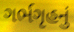
ગર્ભગૃહનું